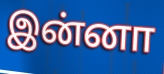
இன்னா